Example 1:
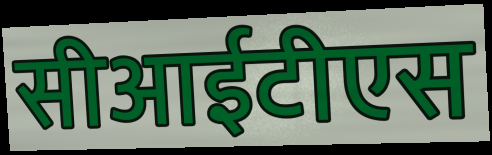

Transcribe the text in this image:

सीआईटीएस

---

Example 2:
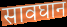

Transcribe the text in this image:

सावघान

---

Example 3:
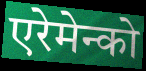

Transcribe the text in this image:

एरेमेन्को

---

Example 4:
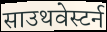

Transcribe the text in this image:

साउथवेस्टर्न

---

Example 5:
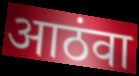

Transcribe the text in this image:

आठंवा